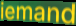
iemand